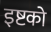
इष्टको